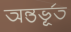
অন্তর্ভূত